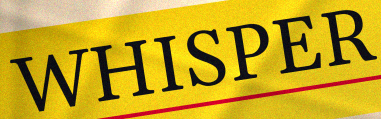
WHISPER